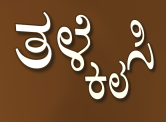
ತಳ್ಕೈಸಿ